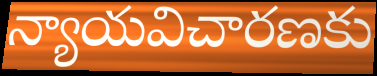
న్యాయవిచారణకు